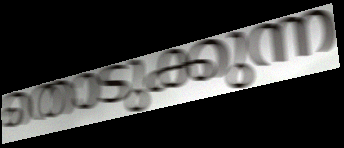
തൊടുക്കുന്ന